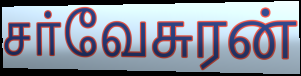
சர்வேசுரன்